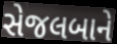
સેજલબાને